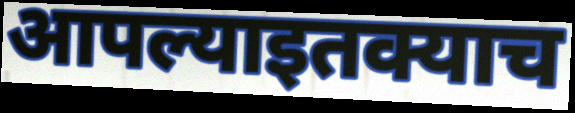
आपल्याइतक्याच